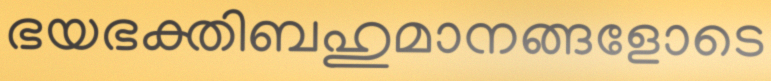
ഭയഭക്തിബഹുമാനങ്ങളോടെ